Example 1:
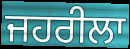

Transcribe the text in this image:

ਜਹਰੀਲਾ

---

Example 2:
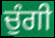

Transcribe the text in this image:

ਚੁੰਗੀ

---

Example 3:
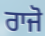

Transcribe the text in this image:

ਰਾਜੋ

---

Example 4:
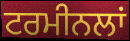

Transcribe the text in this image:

ਟਰਮੀਨਲਾਂ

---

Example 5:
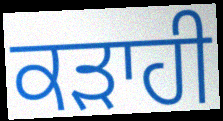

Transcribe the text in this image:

ਕੜਾਹੀ